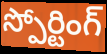
స్పోర్టింగ్